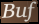
Buf